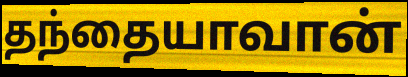
தந்தையாவான்